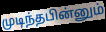
முடிந்தபின்னும்